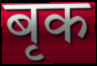
बृक